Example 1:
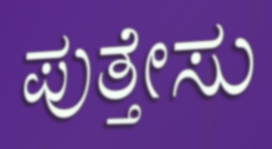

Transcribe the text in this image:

ಪುತ್ತೇಸು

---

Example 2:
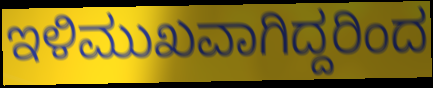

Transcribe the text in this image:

ಇಳಿಮುಖವಾಗಿದ್ದರಿಂದ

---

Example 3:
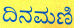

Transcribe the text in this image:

ದಿನಮಣಿ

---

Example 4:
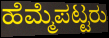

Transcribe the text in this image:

ಹೆಮ್ಮೆಪಟ್ಟರು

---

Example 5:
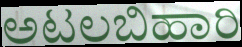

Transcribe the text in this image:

ಅಟಲಬಿಹಾರಿ